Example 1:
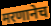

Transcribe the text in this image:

मरणानेच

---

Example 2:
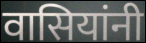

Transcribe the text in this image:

वासियांनी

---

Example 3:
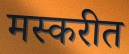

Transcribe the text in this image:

मस्करीत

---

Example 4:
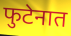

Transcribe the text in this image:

फुटेनात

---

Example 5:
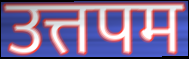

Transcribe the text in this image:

उत्तपम